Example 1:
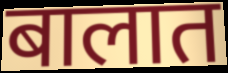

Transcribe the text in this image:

बालात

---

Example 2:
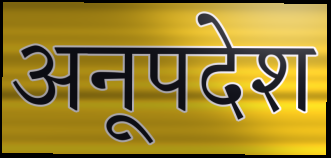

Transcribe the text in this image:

अनूपदेश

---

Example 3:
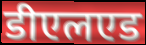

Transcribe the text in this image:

डीएलएड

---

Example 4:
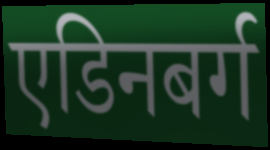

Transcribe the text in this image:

एडिनबर्ग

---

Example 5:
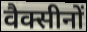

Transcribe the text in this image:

वैक्सीनों